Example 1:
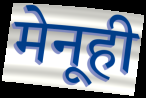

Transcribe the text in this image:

मेनूही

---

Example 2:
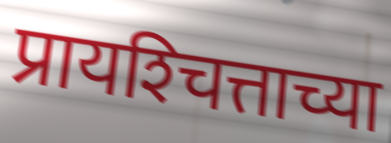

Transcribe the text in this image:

प्रायश्‍चित्ताच्या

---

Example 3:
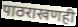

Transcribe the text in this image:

पाठराखणही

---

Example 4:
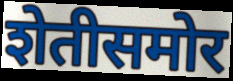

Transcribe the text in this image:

शेतीसमोर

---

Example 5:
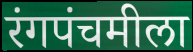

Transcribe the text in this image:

रंगपंचमीला